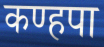
कण्हपा